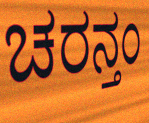
ಚರನ್ತಂ